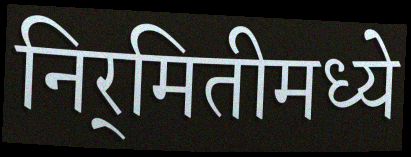
निर्मितीमध्ये